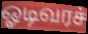
ஓடிவரச்